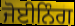
ਜੋਈਨਿੰਗ